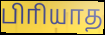
பிரியாத